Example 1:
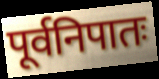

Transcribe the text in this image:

पूर्वनिपातः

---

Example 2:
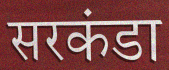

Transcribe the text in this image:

सरकंडा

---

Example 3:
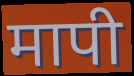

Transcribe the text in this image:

मापी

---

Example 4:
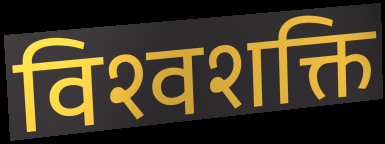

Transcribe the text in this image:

विश्वशक्ति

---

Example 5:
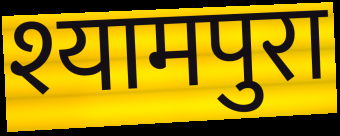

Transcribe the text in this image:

श्यामपुरा